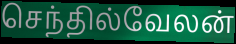
செந்தில்வேலன்